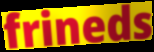
frineds